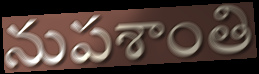
నుపశాంతి